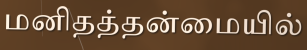
மனிதத்தன்மையில்